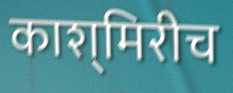
काश्मिरीच